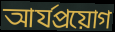
আর্যপ্রয়োগ